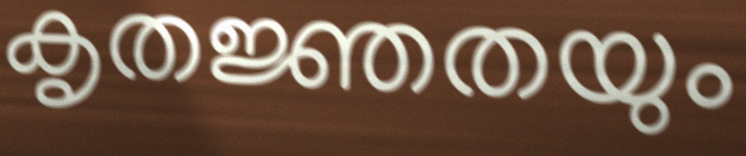
കൃതജ്ഞതയും